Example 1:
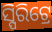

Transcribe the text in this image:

ସ୍ପିରିଟ୍ରେ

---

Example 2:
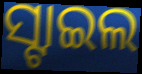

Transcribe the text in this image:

ସ୍ଟାଇଲ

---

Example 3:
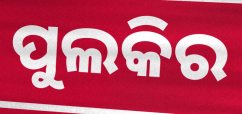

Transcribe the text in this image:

ପୁଲକିର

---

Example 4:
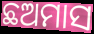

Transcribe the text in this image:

ଛଅମାସ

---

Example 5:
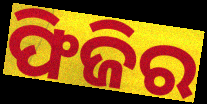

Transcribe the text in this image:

ଫିଜିର